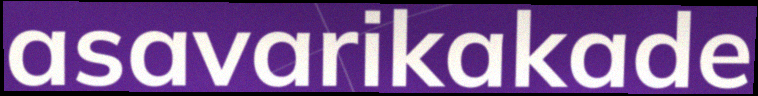
asavarikakade